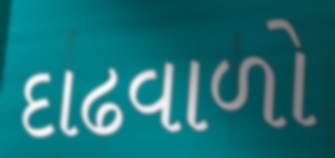
દાઢવાળો